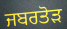
ਜਬਰਤੋੜ